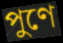
পুণে